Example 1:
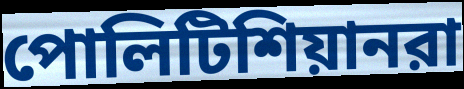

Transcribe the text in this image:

পোলিটিশিয়ানরা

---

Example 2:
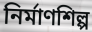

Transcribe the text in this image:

নির্মাণশিল্প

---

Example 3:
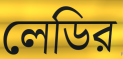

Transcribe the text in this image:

লেডির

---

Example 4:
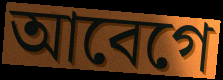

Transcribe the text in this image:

আবেগে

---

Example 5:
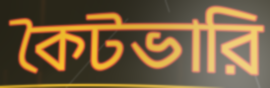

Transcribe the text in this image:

কৈটভারি